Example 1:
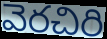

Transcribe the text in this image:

వెరచిరి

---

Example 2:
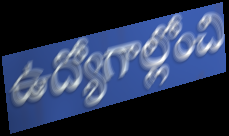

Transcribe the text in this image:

ఉద్యోగాల్లోంచి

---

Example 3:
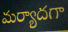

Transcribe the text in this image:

మర్యాదగా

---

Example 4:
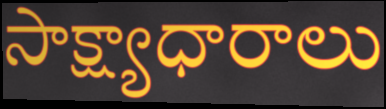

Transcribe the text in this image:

సాక్ష్యాధారాలు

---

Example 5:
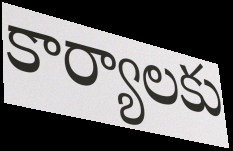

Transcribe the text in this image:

కార్యాలకు